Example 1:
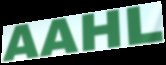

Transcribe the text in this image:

AAHL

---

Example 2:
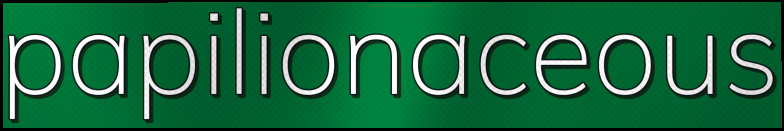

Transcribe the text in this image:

papilionaceous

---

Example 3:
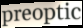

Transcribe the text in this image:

preoptic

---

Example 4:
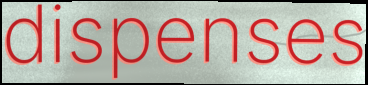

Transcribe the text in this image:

dispenses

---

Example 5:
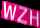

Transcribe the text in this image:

WZH